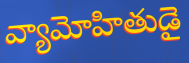
వ్యామోహితుడై